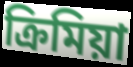
ক্রিমিয়া